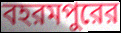
বহরমপুরের